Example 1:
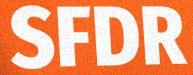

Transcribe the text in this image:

SFDR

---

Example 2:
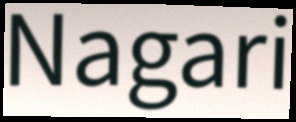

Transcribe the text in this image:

Nagari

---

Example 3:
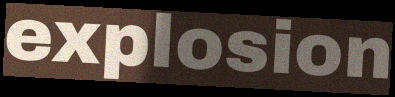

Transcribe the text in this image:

explosion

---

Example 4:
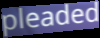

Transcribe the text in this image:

pleaded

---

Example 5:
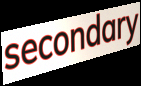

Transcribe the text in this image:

secondary